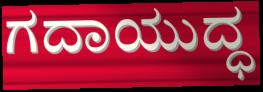
ಗದಾಯುದ್ಧ